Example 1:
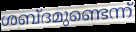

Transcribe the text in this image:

ശബ്ദമുണ്ടെന്ന്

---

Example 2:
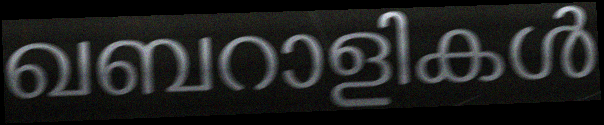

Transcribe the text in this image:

ഖബറാളികൾ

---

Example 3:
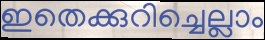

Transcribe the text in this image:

ഇതെക്കുറിച്ചെല്ലാം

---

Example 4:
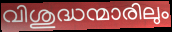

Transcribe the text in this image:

വിശുദ്ധന്മാരിലും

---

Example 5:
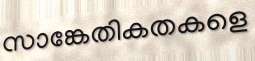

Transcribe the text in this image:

സാങ്കേതികതകളെ